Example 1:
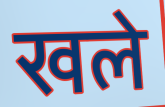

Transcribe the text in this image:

खले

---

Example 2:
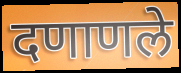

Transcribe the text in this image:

दणाणले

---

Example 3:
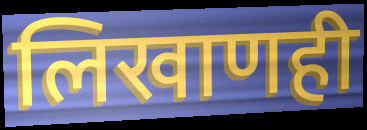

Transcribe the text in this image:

लिखाणही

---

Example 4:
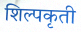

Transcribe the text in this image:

शिल्पकृती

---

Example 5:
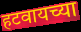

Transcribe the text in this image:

हटवायच्या